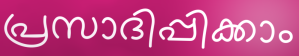
പ്രസാദിപ്പിക്കാം